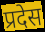
प्रदेस